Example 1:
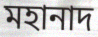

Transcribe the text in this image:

মহানাদ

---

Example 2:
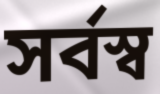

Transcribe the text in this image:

সৰ্বস্ব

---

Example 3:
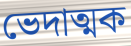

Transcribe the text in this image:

ভেদাত্মক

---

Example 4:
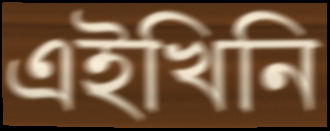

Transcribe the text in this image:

এইখিনি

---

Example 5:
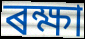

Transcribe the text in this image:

ৰক্ষা